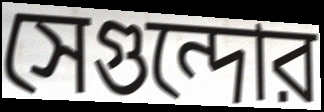
সেগুন্দোর